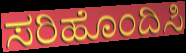
ಸರಿಹೊಂದಿಸಿ